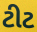
ટીટ